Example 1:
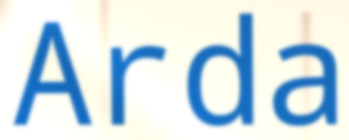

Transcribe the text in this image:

Arda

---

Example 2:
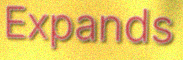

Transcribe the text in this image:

Expands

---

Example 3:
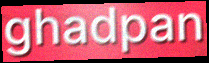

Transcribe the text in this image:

ghadpan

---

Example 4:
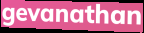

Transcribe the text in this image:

gevanathan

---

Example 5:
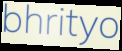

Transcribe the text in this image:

bhrityo